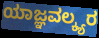
ಯಾಜ್ಞವಲ್ಕ್ಯರ